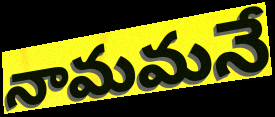
నామమనే